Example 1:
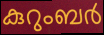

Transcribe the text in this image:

കുറുംബർ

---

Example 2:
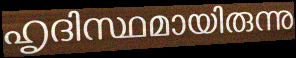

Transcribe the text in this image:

ഹൃദിസ്ഥമായിരുന്നു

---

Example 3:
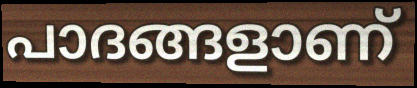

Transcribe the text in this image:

പാദങ്ങളാണ്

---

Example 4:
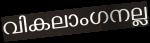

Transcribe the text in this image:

വികലാംഗനല്ല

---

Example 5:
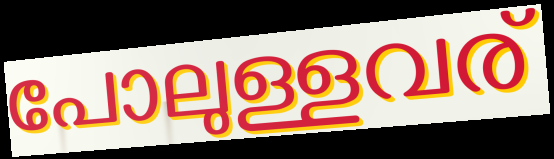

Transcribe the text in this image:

പോലുള്ളവര്